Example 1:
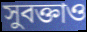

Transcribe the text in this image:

সুবক্তাও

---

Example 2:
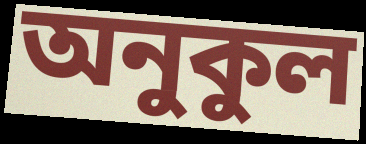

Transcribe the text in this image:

অনুকুল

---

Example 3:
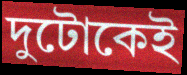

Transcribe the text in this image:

দুটোকেই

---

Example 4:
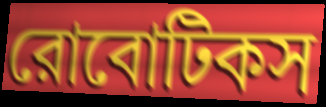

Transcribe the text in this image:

রোবোটিকস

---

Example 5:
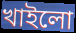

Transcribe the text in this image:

খাইলো